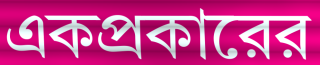
একপ্রকারের